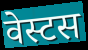
वेस्टस